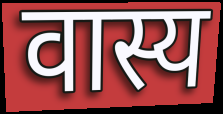
वास्य